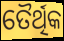
ତୈର୍ଥିକ